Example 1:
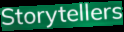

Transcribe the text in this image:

Storytellers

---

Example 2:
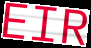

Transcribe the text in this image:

EIR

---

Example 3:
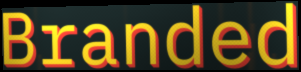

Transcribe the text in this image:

Branded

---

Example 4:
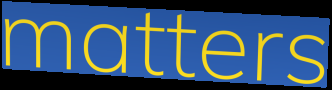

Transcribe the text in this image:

matters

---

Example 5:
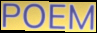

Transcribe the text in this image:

POEM